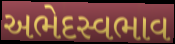
અભેદસ્વભાવ